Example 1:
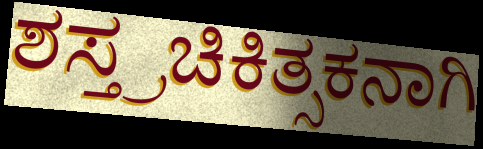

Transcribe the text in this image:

ಶಸ್ತ್ರಚಿಕಿತ್ಸಕನಾಗಿ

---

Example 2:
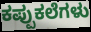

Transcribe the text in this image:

ಕಪ್ಪುಕಲೆಗಳು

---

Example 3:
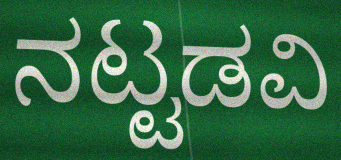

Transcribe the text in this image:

ನಟ್ಟಡವಿ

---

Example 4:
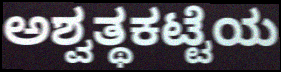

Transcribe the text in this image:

ಅಶ್ವತ್ಥಕಟ್ಟೆಯ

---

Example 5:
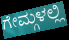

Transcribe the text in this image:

ಗೇಮ್ಗಳಲ್ಲಿ